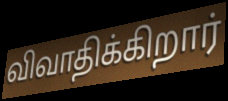
விவாதிக்கிறார்